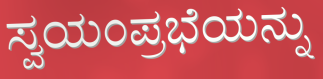
ಸ್ವಯಂಪ್ರಭೆಯನ್ನು